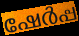
ഷേർപ്പ